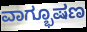
ವಾಗ್ಭೂಷಣ